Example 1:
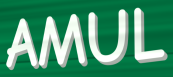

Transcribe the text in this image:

AMUL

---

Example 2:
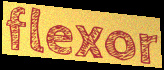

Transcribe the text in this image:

flexor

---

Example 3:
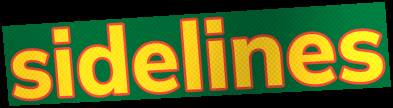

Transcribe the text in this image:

sidelines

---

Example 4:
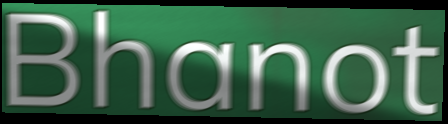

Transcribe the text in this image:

Bhanot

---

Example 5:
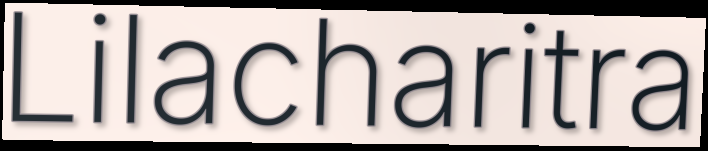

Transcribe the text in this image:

Lilacharitra